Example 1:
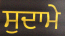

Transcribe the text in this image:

ਸੁਦਾਮੇ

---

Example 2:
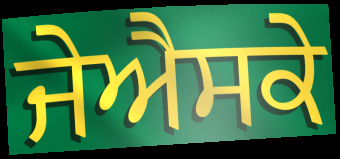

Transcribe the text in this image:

ਜੇਐਸਕੇ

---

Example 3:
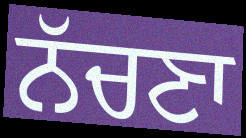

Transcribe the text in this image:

ਨੱਚਣਾ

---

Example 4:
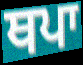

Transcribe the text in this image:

ਥਪਾ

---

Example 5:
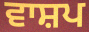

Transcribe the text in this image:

ਵਾਸ਼ਪ